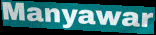
Manyawar